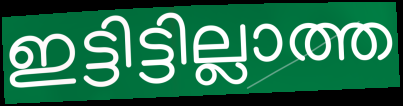
ഇട്ടിട്ടില്ലാത്ത